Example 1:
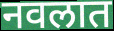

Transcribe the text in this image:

नवलात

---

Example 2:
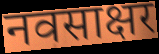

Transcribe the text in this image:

नवसाक्षर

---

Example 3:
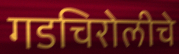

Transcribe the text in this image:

गडचिरोलीचे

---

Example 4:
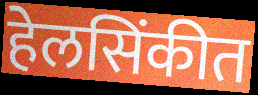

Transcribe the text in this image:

हेलसिंकीत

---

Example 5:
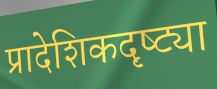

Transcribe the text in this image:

प्रादेशिकदृष्ट्या